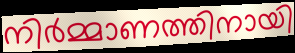
നിർമ്മാണത്തിനായി